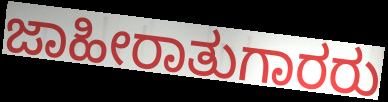
ಜಾಹೀರಾತುಗಾರರು